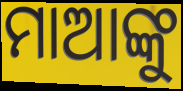
ମାଆଙ୍କୁ